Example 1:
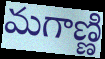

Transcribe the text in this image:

మగాణ్ణి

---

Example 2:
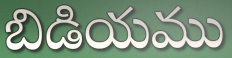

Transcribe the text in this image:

బిడియము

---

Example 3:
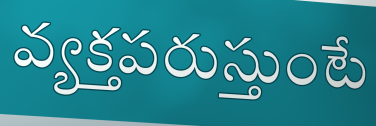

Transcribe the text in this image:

వ్యక్తపరుస్తుంటే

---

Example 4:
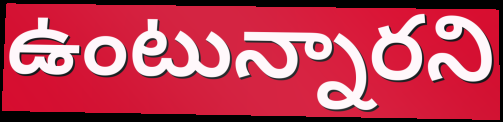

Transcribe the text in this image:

ఉంటున్నారని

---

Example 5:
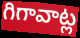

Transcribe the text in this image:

గిగావాట్ల